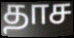
தாச